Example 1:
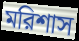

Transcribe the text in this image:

মরিশাস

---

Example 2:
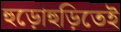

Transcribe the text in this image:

হুড়োহুড়িতেই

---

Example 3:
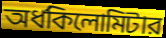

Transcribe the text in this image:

অর্ধকিলোমিটার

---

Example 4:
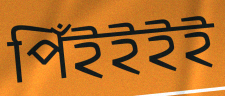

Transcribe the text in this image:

পিঁইইইই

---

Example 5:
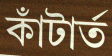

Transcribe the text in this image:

কাঁটার্ত